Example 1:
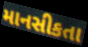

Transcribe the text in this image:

માનસીકતા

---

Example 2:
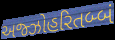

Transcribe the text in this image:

અજ્ઝોહરિતબ્બં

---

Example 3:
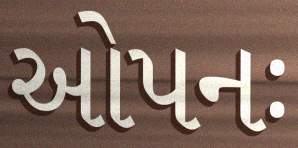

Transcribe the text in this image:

ઓપનઃ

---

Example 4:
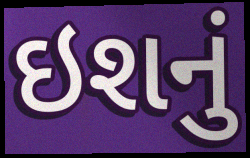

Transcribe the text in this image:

ઇશનું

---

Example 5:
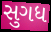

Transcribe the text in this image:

સુગધ